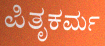
ಪಿತೃಕರ್ಮ